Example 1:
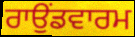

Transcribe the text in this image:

ਰਾਉਂਡਵਾਰਮ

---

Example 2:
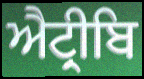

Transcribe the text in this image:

ਐਟ੍ਰੀਬਿ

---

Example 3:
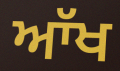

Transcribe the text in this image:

ਆੱਖ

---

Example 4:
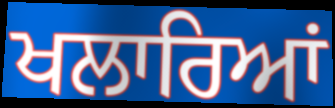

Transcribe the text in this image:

ਖਲਾਰਿਆਂ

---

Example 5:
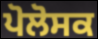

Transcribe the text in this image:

ਪੋਲੋਸਕ